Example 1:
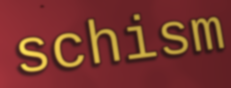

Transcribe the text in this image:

schism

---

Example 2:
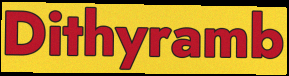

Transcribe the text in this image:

Dithyramb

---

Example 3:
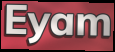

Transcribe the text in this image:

Eyam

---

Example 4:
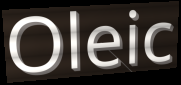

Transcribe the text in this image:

Oleic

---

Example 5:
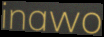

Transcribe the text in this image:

inawo